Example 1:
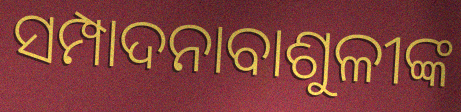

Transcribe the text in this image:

ସମ୍ପାଦନାବାଶୁଳୀଙ୍କ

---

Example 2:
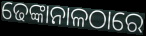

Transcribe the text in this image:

ଢେଙ୍କାନାଳଠାରେ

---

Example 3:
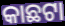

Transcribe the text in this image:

କାଛଟା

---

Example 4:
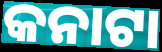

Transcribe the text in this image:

କନାଟା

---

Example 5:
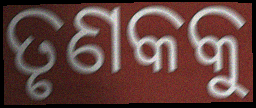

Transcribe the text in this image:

ତୃଣକକୁ